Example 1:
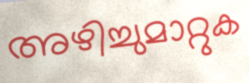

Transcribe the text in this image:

അഴിച്ചുമാറ്റുക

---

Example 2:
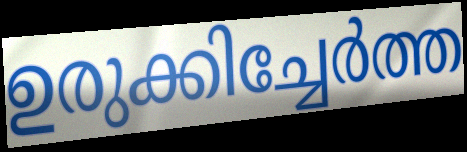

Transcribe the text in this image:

ഉരുക്കിച്ചേർത്ത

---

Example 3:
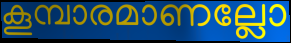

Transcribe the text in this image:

കൂമ്പാരമാണല്ലോ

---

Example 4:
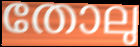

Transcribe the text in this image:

തോലു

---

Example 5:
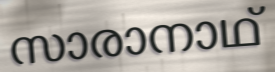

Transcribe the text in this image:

സാരാനാഥ്